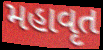
મહાવૃત